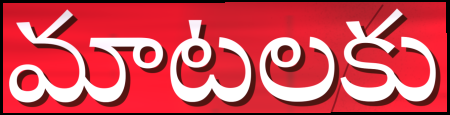
మాటలకు